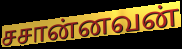
சசான்னவன்